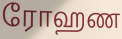
ரோஹண